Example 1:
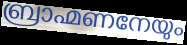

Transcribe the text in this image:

ബ്രാഹ്മണനേയും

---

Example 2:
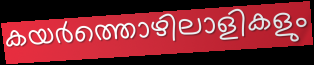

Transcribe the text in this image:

കയർത്തൊഴിലാളികളും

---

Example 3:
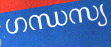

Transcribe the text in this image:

ഗന്ധസ്യ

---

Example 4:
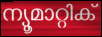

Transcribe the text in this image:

ന്യൂമാറ്റിക്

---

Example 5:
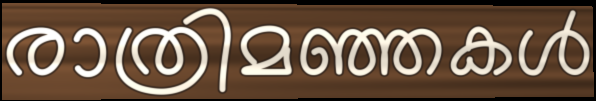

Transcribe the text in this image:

രാത്രിമഞ്ഞകൾ